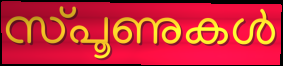
സ്പൂണുകൾ